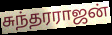
சுந்தரராஜன்